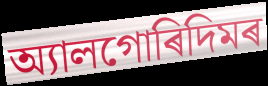
অ্যালগোৰিদিমৰ